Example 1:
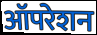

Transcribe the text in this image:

ऑपरेशन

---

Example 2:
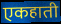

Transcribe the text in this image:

एकहाती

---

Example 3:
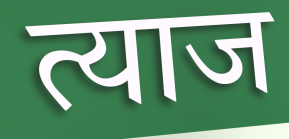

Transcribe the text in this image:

त्याज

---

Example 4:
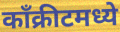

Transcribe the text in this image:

काँक्रीटमध्ये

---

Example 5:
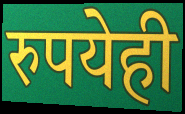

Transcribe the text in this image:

रुपयेही